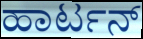
ಹಾರ್ಟನ್